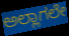
ಅಲ್ಲಾಗಲೇ